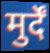
मुर्दें